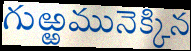
గుఱ్ఱమునెక్కిన